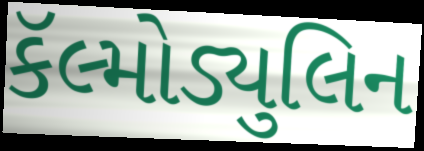
કૅલ્મોડ્યુલિન